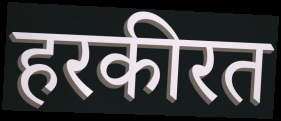
हरकीरत